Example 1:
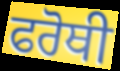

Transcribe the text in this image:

ਫਰੋਥੀ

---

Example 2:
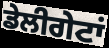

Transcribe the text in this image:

ਡੇਲੀਗੇਟਾਂ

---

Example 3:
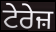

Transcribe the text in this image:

ਟੇਰੇਜ਼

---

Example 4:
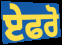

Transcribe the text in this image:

ਏਫਰੋ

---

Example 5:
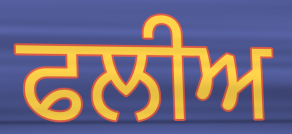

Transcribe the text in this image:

ਫਲੀਅ